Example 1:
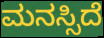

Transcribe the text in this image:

ಮನಸ್ಸಿದೆ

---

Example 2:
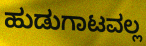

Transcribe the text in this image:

ಹುಡುಗಾಟವಲ್ಲ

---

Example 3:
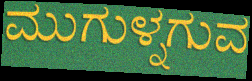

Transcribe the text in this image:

ಮುಗುಳ್ನಗುವ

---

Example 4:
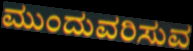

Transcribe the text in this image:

ಮುಂದುವರಿಸುವ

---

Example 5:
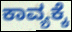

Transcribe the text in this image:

ಕಾವ್ಯಕ್ಕೆ